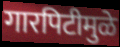
गारपिटीमुळे